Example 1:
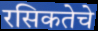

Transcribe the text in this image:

रसिकतेचे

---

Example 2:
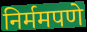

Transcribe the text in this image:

निर्ममपणे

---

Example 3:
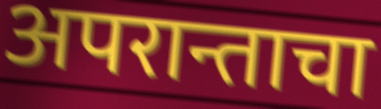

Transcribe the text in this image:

अपरान्ताचा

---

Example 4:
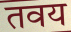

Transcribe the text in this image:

तवय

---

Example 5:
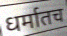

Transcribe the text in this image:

धर्मातच